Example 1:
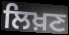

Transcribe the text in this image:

ਲਿਖ਼ਣ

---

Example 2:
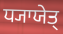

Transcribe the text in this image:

ਧ੍ਯਾਯੇਤ੍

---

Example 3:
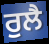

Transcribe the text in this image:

ਰੁਲੈ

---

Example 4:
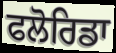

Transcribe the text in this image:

ਫਲੋਰਿਡਾ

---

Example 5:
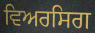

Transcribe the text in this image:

ਵਿਅਰਸਿਗ